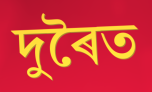
দুৰৈত